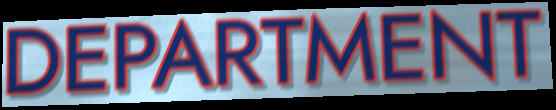
DEPARTMENT